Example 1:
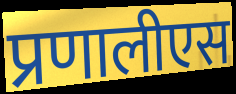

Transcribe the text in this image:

प्रणालीएस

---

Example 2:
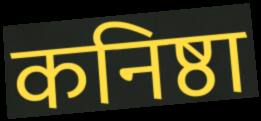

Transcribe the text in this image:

कनिष्ठा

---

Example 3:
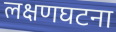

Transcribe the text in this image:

लक्षणघटना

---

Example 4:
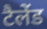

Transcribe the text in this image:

टैलेंड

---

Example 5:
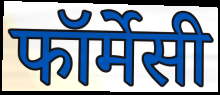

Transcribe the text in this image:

फॉर्मेसी